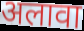
अलावा